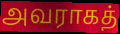
அவராகத்